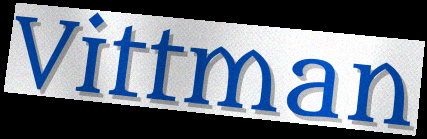
Vittman